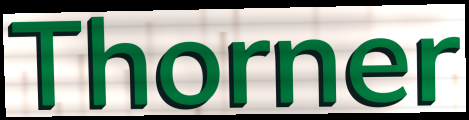
Thorner